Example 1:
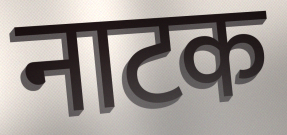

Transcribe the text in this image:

नाटक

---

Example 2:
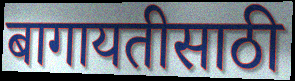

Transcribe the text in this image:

बागायतीसाठी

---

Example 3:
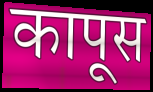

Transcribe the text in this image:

कापूस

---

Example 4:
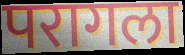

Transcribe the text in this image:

परागला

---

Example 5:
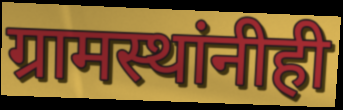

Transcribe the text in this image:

ग्रामस्थांनीही